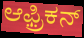
ಆಫ಼್ರಿಕನ್